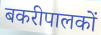
बकरीपालकों